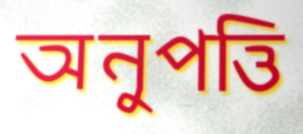
অনুপত্তি